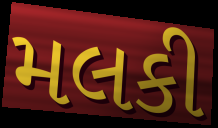
મલકી